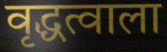
वृद्धत्वाला